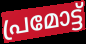
പ്രമോട്ട്